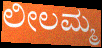
ಲೀಲಮ್ಮ